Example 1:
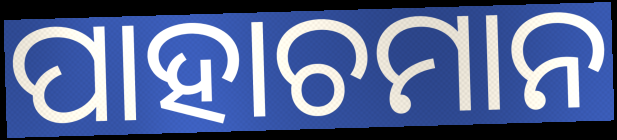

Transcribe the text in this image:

ପାହାଚମାନ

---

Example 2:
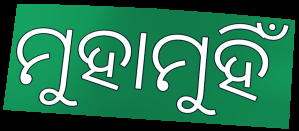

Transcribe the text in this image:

ମୁହାମୁହିଁ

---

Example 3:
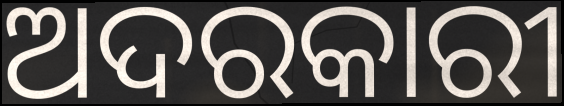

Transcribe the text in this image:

ଅଦରକାରୀ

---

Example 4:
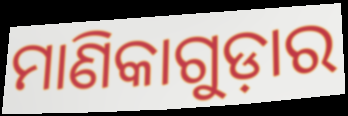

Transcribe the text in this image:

ମାଣିକାଗୁଡ଼ାର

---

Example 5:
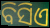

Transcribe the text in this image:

ବିସିଏ